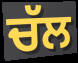
ਚੱਲ